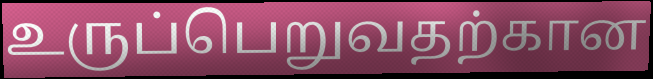
உருப்பெறுவதற்கான